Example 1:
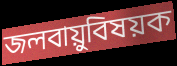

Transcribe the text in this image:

জলবায়ুবিষয়ক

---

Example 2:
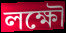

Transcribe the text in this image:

লক্ষৌ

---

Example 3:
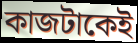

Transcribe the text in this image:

কাজটাকেই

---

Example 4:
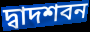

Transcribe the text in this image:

দ্বাদশবন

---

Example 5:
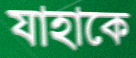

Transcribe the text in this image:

যাহাকে